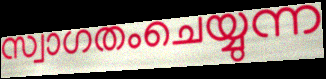
സ്വാഗതംചെയ്യുന്ന